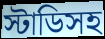
স্টাডিসহ